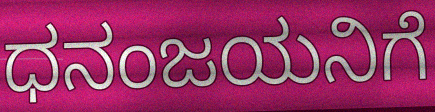
ಧನಂಜಯನಿಗೆ